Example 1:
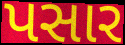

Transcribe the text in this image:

પસાર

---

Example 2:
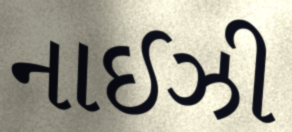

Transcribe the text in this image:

નાઈઝી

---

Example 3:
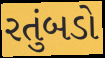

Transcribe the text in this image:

રતુંબડો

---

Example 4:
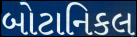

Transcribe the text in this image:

બોટાનિકલ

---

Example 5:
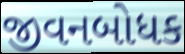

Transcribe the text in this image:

જીવનબોધક